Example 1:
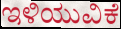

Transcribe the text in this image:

ಇಳಿಯುವಿಕೆ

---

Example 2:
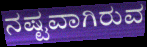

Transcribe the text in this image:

ನಷ್ಟವಾಗಿರುವ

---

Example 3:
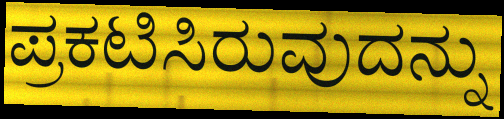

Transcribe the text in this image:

ಪ್ರಕಟಿಸಿರುವುದನ್ನು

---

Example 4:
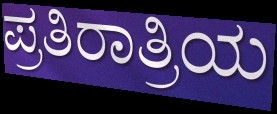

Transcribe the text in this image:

ಪ್ರತಿರಾತ್ರಿಯ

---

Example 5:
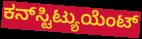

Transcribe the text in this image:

ಕನ್‌ಸ್ಟಿಟ್ಯುಯೆಂಟ್